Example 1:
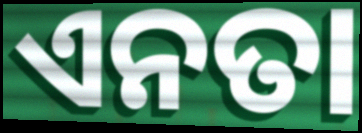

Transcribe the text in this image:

ଏନତା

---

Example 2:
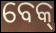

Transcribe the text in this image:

ବେକ୍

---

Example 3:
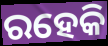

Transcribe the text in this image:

ରହେକି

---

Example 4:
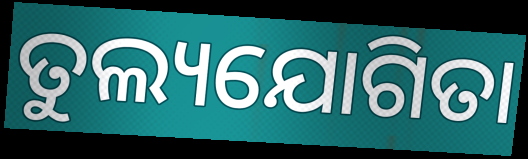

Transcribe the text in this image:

ତୁଲ୍ୟଯୋଗିତା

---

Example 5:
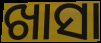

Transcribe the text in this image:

ଖାସା